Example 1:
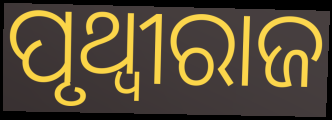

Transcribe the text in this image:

ପୃଥ୍ୱୀରାଜ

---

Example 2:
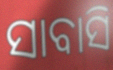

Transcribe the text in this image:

ସାବାସି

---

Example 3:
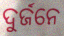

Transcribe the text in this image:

ଦୁର୍ଜନେ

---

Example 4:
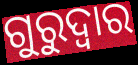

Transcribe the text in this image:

ଗୁରୁଦ୍ଵାର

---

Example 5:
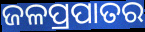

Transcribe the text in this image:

ଜଳପ୍ରପାତର